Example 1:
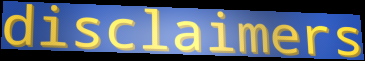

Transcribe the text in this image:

disclaimers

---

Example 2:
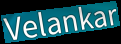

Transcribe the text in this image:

Velankar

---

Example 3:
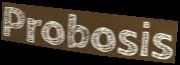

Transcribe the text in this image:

Probosis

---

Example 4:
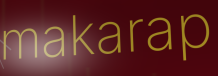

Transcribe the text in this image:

makarap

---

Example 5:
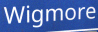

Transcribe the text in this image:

Wigmore